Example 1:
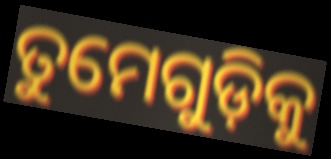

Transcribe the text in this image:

ତୁମେଗୁଡ଼ିକୁ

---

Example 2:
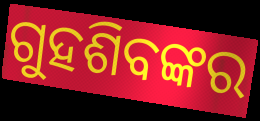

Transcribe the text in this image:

ଗୁହଶିବଙ୍କର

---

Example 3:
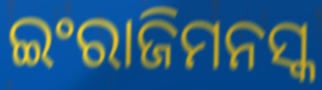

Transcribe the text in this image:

ଇଂରାଜିମନସ୍କ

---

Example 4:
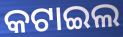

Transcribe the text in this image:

କଟାଇଲ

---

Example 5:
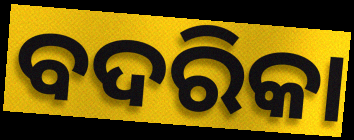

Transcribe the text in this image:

ବଦରିକା